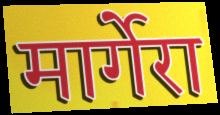
मार्गेरा